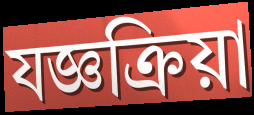
যজ্ঞক্রিয়া